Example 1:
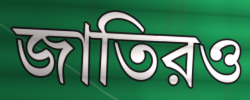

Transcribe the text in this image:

জাতিরও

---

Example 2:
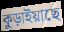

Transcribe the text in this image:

কুড়াইয়াছে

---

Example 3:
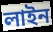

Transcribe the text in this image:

লাইন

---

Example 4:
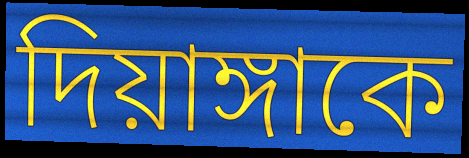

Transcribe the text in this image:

দিয়াঙ্গাকে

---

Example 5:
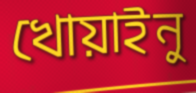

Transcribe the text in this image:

খোয়াইনু